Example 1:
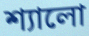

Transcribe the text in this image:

শ্যালো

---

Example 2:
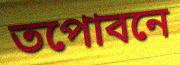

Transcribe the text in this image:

তপোবনে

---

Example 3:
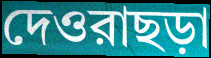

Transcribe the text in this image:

দেওরাছড়া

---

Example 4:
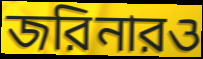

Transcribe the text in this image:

জরিনারও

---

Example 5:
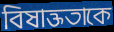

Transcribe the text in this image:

বিষাক্ততাকে